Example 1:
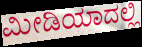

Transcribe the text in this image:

ಮೀಡಿಯಾದಲ್ಲಿ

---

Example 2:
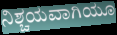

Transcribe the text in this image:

ನಿಶ್ಚಯವಾಗಿಯೂ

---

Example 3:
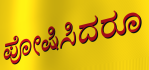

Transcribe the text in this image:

ಪೋಷಿಸಿದರೂ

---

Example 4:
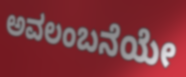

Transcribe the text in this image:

ಅವಲಂಬನೆಯೇ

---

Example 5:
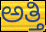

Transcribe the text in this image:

ಅತ್ತಿ